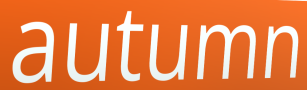
autumn